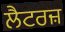
ਲੈਟਰਜ਼